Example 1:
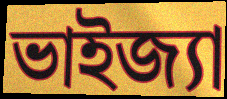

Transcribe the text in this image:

ভাইজ্যা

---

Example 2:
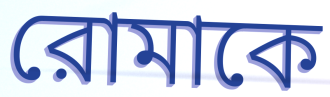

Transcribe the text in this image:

রোমাকে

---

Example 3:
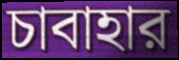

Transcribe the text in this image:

চাবাহার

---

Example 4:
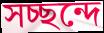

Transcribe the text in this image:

সচ্ছন্দে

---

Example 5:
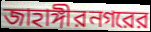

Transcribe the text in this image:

জাহাঙ্গীরনগরের